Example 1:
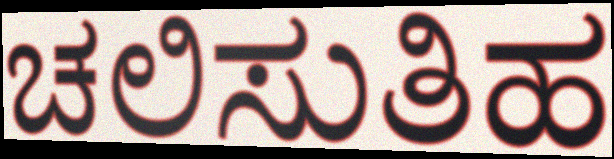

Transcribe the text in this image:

ಚಲಿಸುತಿಹ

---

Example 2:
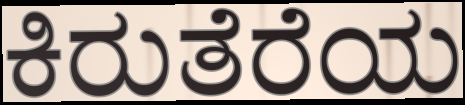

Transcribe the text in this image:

ಕಿರುತೆರೆಯ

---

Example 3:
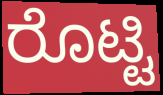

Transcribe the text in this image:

ರೊಟ್ಟಿ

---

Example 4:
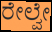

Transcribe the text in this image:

ರೇಲ್ವೇ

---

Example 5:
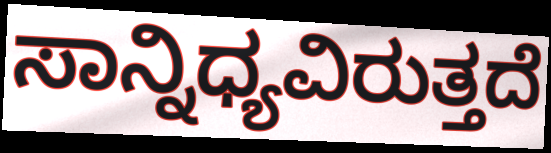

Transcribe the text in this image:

ಸಾನ್ನಿಧ್ಯವಿರುತ್ತದೆ